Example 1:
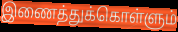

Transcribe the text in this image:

இணைத்துக்கொள்ளும்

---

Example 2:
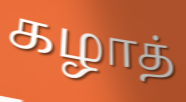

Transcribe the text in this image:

கழாத்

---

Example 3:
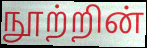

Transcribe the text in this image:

நூற்றின்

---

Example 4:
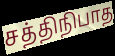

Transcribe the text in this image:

சத்திநிபாத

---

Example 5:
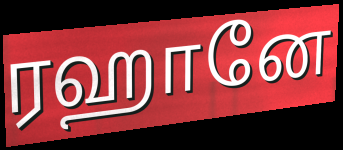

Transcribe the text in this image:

ரஹானே